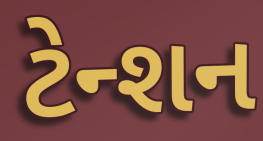
ટેન્શન